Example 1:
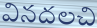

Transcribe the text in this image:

వినదలచి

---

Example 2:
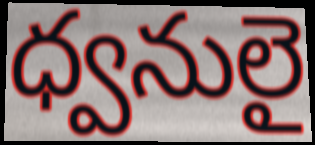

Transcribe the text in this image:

ధ్వనులై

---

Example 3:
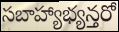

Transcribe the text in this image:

సబాహ్యాభ్యన్తరో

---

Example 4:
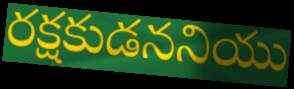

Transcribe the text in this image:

రక్షకుడననియు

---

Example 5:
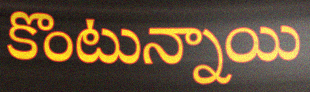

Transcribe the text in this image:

కొంటున్నాయి